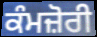
ਕੰਮਜ਼ੋਰੀ